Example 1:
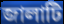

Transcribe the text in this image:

জালাটি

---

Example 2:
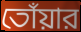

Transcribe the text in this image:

তোঁয়ার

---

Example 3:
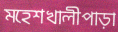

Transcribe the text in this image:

মহেশখালীপাড়া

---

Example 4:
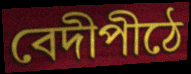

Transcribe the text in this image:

বেদীপীঠে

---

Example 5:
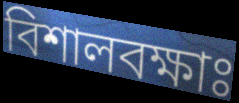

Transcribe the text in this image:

বিশালবক্ষাঃ